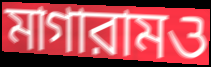
মাগারামও